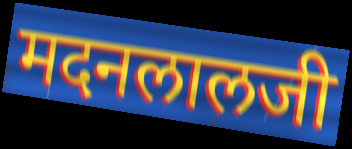
मदनलालजी